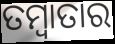
ତମ୍ବାତାର